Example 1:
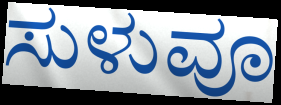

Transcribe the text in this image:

ಸುಳುವೂ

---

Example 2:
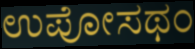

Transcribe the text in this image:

ಉಪೋಸಥಂ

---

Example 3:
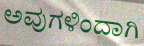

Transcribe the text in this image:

ಅವುಗಳಿಂದಾಗಿ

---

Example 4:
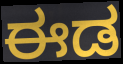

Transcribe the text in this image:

ಈಡ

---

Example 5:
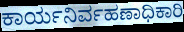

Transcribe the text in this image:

ಕಾರ್ಯನಿರ್ವಹಣಾಧಿಕಾರಿ